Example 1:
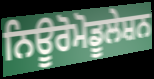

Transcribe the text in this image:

ਨਿਊਰੋਮੋਡੂਲੇਸ਼ਨ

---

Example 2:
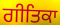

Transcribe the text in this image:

ਗੀਤਿਕਾ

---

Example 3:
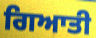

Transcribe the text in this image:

ਗਿਆਤੀ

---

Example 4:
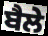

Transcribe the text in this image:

ਬੈਲੇ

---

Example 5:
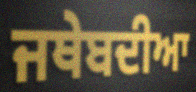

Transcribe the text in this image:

ਜਥੇਬਦੀਆ